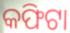
କଫିଟା